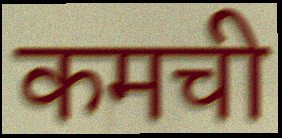
कमची